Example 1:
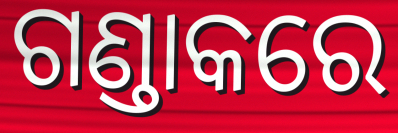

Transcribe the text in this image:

ଗଣ୍ଡାକରେ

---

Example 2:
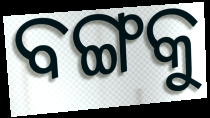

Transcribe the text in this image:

ବଙ୍ଗକୁ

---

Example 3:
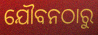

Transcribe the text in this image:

ଯୌବନଠାରୁ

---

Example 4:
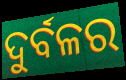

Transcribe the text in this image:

ଦୁର୍ବଳର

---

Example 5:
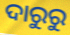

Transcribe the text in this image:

ଦାରୁରୁ